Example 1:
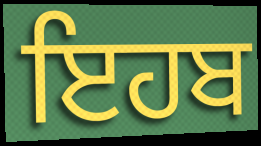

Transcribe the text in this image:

ਇਹਬ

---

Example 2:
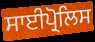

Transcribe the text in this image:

ਸਾਈਪ੍ਰੋਲਿਸ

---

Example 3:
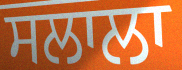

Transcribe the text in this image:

ਸਲਾਲਾ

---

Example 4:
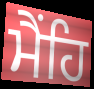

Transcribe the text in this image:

ਮੈਂਹਿ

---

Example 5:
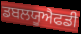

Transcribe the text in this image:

ਡਬਲਯੂਐਫਡੀ